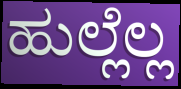
ಹುಲ್ಲೆಲ್ಲ